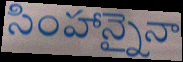
సింహాన్నైనా